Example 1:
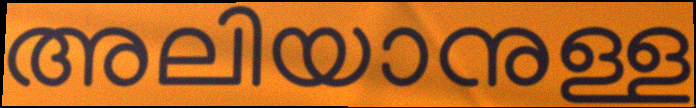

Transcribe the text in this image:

അലിയാനുള്ള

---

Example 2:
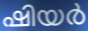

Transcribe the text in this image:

ഷിയർ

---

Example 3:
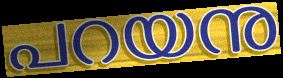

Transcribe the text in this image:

പറയനു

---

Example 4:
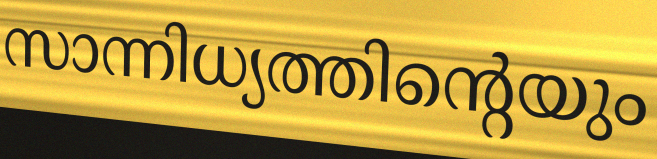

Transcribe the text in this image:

സാന്നിധ്യത്തിന്റെയും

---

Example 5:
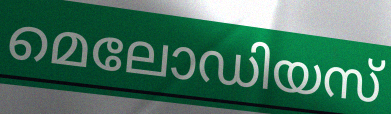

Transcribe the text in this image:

മെലോഡിയസ്